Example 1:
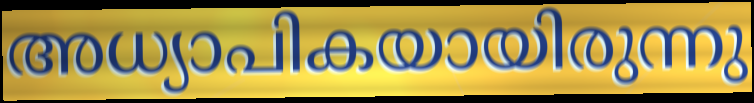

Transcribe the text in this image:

അധ്യാപികയായിരുന്നു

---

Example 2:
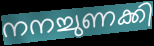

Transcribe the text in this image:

നനച്ചുണക്കി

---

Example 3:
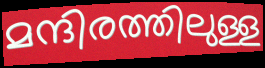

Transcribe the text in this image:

മന്ദിരത്തിലുള്ള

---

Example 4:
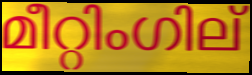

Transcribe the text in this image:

മീറ്റിംഗില്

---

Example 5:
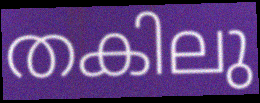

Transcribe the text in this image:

തകിലു